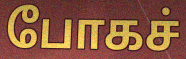
போகச்